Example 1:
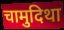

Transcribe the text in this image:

चामुदिथा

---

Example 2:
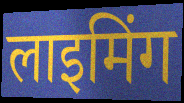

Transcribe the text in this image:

लाइमिंग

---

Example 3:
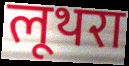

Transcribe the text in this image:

लूथरा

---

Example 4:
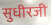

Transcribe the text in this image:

सुधीरजी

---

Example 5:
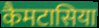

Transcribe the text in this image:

कैमटासिया